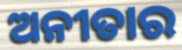
ଅନୀତାର